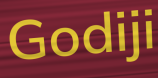
Godiji